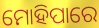
ମୋହିପାରେ